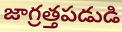
జాగ్రత్తపడుడి